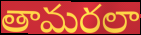
తామరలా